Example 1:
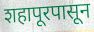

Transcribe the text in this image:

शहापूरपासून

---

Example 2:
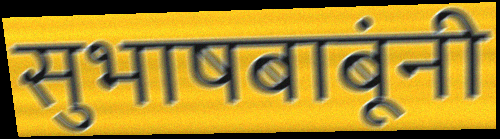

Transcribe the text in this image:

सुभाषबाबूंनी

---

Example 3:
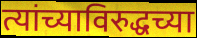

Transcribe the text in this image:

त्यांच्याविरुद्धच्या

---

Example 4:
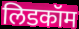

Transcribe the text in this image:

लिडकॉम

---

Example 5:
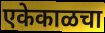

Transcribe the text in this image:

एकेकाळचा